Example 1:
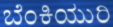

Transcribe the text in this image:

ಬೆಂಕಿಯುರಿ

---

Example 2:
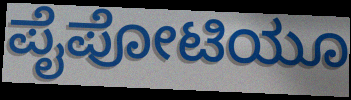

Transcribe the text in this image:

ಪೈಪೋಟಿಯೂ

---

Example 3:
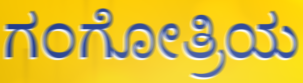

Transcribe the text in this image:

ಗಂಗೋತ್ರಿಯ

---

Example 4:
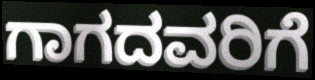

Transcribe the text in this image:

ಗಾಗದವರಿಗೆ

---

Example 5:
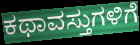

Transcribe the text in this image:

ಕಥಾವಸ್ತುಗಳಿಗೆ